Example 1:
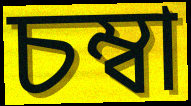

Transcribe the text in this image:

চম্বা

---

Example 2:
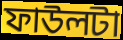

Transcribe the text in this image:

ফাউলটা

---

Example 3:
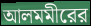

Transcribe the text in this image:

আলমমীরের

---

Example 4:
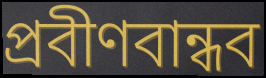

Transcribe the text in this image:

প্রবীণবান্ধব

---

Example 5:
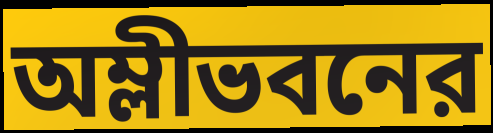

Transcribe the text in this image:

অম্লীভবনের